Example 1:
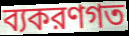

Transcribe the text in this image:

ব্যকরণগত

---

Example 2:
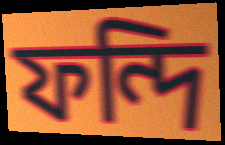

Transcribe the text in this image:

ফন্দি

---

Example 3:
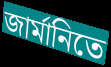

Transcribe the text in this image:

জার্মানিতে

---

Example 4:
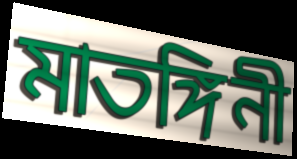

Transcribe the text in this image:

মাতঙ্গিনী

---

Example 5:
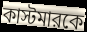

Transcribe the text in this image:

কাস্টমারকে